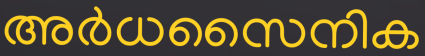
അർധസൈനിക